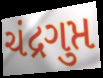
ચંદ્રગુપ્ત